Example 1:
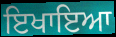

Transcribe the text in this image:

ਇਖਾਇਆ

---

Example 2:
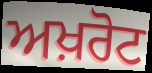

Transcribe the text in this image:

ਅਖ਼ਰੋਟ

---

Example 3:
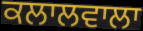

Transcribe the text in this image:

ਕਲਾਲਵਾਲਾ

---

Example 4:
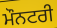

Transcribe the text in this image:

ਮੌਨਟਰੀ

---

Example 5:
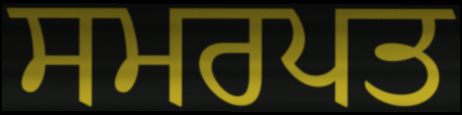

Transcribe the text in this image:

ਸਮਰਪਤ